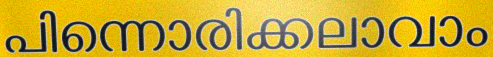
പിന്നൊരിക്കലാവാം